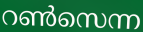
റൺസെന്ന